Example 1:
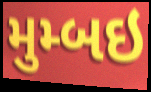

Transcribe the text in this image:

મુમ્બઇ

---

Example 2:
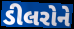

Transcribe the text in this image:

ડીલરોને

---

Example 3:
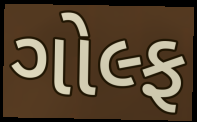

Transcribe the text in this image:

ગોલ્ફ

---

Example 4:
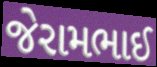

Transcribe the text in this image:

જેરામભાઈ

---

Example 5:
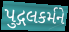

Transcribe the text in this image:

પુદ્ગલકર્મને